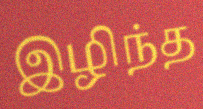
இழிந்த